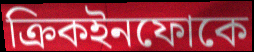
ক্রিকইনফোকে